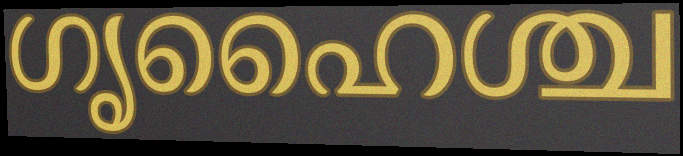
ഗൃഹൈശ്ച